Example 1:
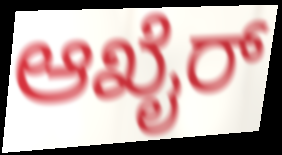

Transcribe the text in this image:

ಆಖೈರ್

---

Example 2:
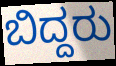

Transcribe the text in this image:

ಬಿದ್ದರು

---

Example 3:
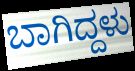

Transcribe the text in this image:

ಬಾಗಿದ್ದಳು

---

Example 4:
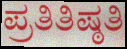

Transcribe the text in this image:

ಪ್ರತಿತಿಷ್ಠತಿ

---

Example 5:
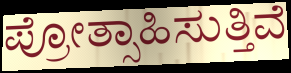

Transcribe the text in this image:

ಪ್ರೋತ್ಸಾಹಿಸುತ್ತಿವೆ